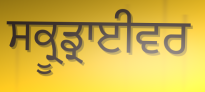
ਸਕ੍ਰੂਡ੍ਰਾਈਵਰ